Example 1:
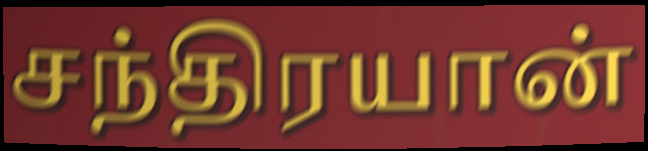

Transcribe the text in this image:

சந்திரயான்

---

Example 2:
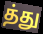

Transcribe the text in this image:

த்து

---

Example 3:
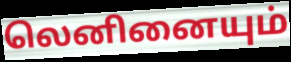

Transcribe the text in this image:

லெனினையும்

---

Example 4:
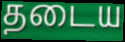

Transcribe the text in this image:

தடைய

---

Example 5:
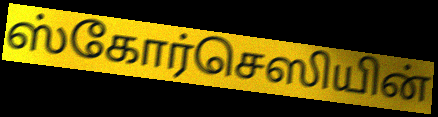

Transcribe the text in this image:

ஸ்கோர்செஸியின்